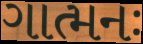
ગાત્મનઃ